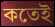
কতেই